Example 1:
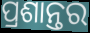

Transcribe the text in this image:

ପ୍ରଶାନ୍ତର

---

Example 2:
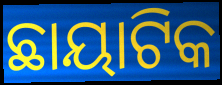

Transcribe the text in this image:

ଛାୟାଟିକ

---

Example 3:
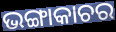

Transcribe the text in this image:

ଭଙ୍ଗାକାଚର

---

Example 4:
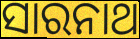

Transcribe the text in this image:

ସାରନାଥ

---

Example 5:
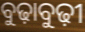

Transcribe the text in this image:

ବୁଢ଼ାବୁଢ଼ୀ